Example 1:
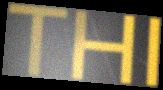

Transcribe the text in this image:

THI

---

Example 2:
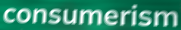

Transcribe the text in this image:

consumerism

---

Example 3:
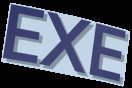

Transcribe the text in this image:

EXE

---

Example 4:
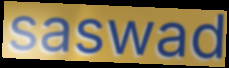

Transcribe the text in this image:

saswad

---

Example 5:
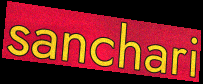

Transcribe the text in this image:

sanchari